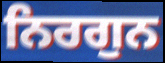
ਨਿਰਗੁਨ